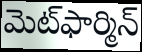
మెట్‌ఫార్మిన్